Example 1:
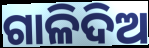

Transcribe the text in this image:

ଗାଳିଦିଅ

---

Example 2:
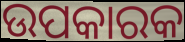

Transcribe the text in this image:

ଉପକାରକ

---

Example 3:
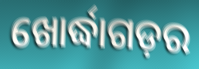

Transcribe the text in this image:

ଖୋର୍ଦ୍ଧାଗଡ଼ର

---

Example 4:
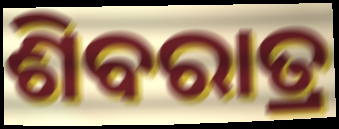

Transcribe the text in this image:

ଶିବରାତ୍ର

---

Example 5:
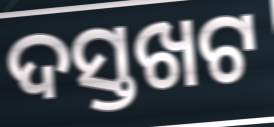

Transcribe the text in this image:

ଦସ୍ତଖଟ